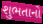
શુભતાનો